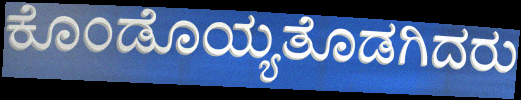
ಕೊಂಡೊಯ್ಯತೊಡಗಿದರು